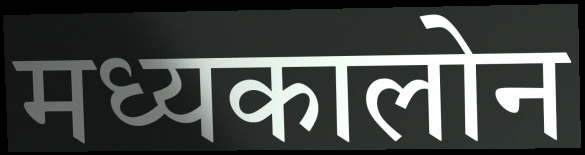
मध्यकालोन